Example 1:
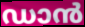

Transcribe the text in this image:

ഡാൻ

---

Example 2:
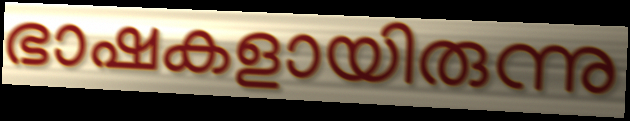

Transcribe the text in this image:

ഭാഷകളായിരുന്നു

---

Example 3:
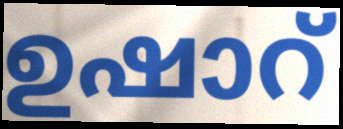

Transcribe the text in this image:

ഉഷാറ്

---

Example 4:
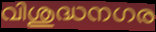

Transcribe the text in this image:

വിശുദ്ധനഗര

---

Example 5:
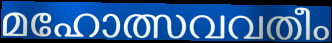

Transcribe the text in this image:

മഹോത്സവവതീം